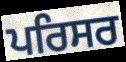
ਪਰਿਸਰ